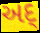
અદ્